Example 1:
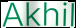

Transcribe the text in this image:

Akhil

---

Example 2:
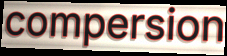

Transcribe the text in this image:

compersion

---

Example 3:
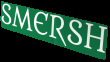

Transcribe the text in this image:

SMERSH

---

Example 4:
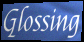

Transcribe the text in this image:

Glossing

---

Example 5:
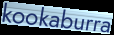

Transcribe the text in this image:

kookaburra